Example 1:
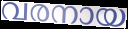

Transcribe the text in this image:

വരനായ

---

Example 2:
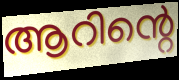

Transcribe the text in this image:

ആറിന്റെ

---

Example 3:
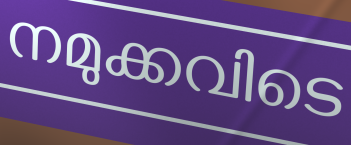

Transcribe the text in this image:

നമുക്കവിടെ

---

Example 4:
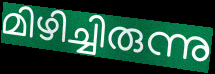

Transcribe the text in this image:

മിഴിച്ചിരുന്നു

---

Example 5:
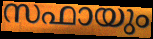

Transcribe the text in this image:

സഫായും